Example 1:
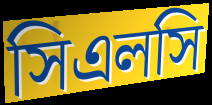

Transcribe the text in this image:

সিএলসি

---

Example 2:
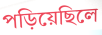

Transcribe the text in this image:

পড়িয়েছিলে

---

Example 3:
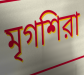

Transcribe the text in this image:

মৃগশিরা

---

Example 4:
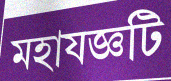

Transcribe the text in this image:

মহাযজ্ঞটি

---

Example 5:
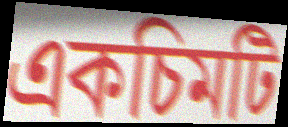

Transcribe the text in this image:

একচিমটি